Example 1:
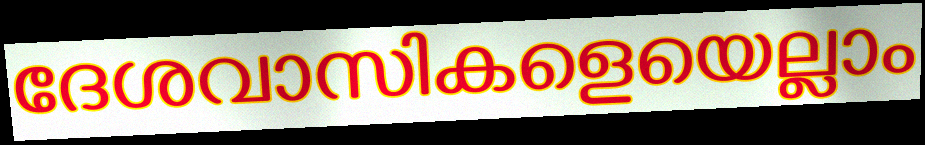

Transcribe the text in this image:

ദേശവാസികളെയെല്ലാം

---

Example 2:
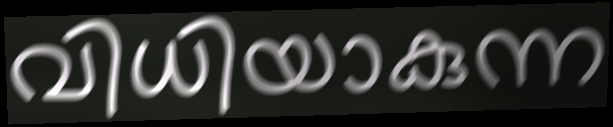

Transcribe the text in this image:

വിധിയാകുന്ന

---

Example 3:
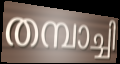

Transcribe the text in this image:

തമ്പാച്ചി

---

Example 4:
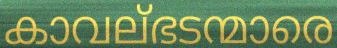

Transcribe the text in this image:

കാവല്ഭടന്മാരെ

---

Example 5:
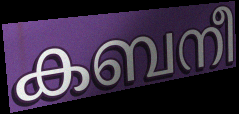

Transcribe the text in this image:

കബനീ